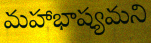
మహాభాష్యమని